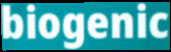
biogenic